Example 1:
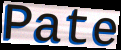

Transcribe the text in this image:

Pate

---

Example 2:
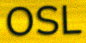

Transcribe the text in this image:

OSL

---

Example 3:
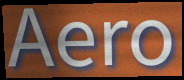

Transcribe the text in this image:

Aero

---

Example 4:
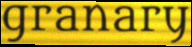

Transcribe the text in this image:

granary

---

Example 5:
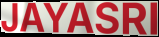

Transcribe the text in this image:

JAYASRI